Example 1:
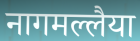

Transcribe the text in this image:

नागमल्लैया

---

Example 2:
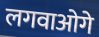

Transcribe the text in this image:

लगवाओगे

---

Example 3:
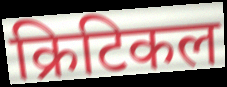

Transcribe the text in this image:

क्रिटिकल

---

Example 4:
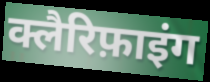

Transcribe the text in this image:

क्लैरिफ़ाइंग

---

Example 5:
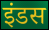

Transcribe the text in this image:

इंडस